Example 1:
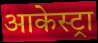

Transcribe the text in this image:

आकेस्ट्रा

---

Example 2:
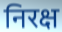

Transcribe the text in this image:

निरक्ष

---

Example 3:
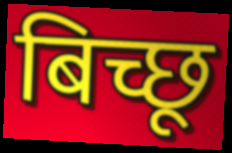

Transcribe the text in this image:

बिच्छू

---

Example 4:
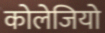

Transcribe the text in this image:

कोलेजियो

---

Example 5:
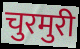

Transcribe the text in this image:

चुरमुरी